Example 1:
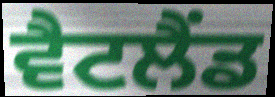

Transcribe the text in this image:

ਵੈਟਲੈਂਡ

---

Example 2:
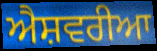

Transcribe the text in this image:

ਐਸ਼ਵਰੀਆ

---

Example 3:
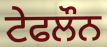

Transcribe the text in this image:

ਟੇਫਲੌਨ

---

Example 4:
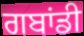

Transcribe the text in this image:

ਗਬਾਂਡੀ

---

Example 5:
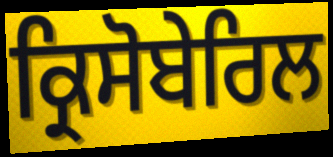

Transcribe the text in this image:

ਕ੍ਰਿਸੋਬੇਰਿਲ